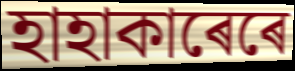
হাহাকাৰেৰে